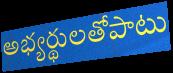
అభ్యర్థులతోపాటు